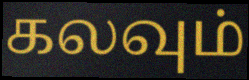
கலவும்